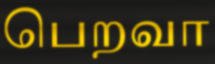
பெறவா